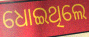
ଧୋଇଥିଲେ